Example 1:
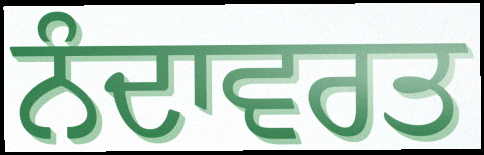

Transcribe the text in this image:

ਨੰਦਾਵਰਤ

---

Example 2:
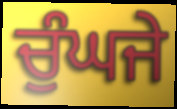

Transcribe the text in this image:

ਚੁੰਘਜੇ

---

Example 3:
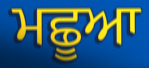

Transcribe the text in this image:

ਮਛੂਆ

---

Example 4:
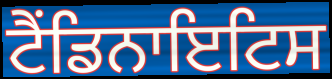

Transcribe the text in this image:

ਟੈਂਡਿਨਾਇਟਿਸ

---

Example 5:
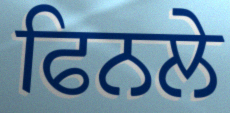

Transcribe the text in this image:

ਫਿਨਲੇ